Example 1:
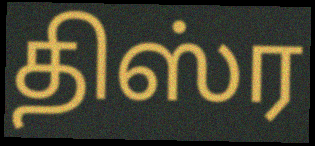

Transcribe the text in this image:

திஸ்ர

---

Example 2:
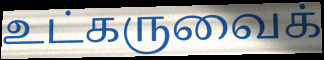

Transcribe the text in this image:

உட்கருவைக்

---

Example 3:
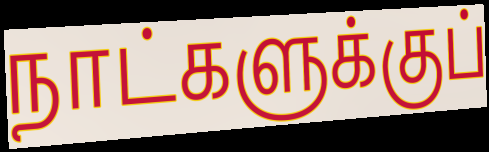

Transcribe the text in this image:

நாட்களுக்குப்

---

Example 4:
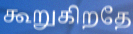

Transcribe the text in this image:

கூறுகிறதே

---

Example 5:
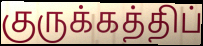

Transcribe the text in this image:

குருக்கத்திப்